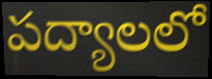
పద్యాలలో